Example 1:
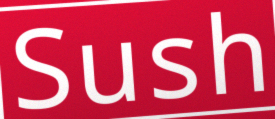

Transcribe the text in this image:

Sush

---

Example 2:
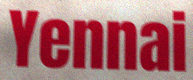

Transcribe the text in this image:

Yennai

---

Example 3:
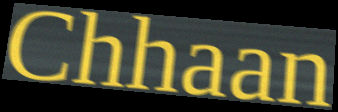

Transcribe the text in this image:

Chhaan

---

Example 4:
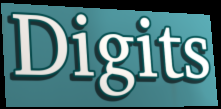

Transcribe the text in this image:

Digits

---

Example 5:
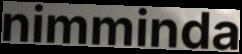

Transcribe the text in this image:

nimminda